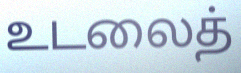
உடலைத்